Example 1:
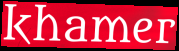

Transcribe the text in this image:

khamer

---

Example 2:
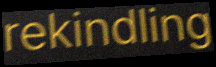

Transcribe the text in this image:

rekindling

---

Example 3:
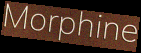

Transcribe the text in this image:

Morphine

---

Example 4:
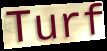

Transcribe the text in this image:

Turf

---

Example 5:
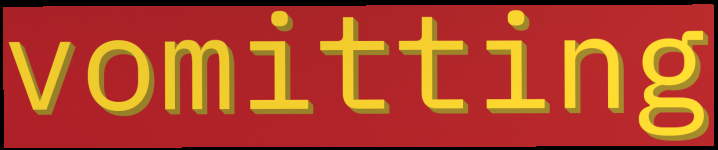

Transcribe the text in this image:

vomitting